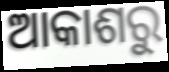
ଆକାଶରୁ